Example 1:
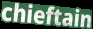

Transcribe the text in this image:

chieftain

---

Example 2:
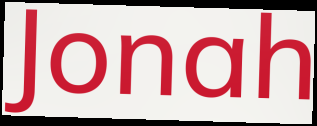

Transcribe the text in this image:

Jonah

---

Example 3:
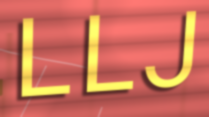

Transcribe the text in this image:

LLJ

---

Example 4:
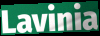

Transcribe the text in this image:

Lavinia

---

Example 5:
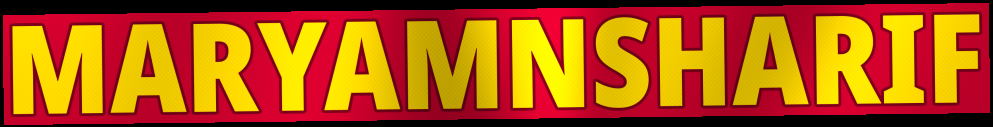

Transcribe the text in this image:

MARYAMNSHARIF